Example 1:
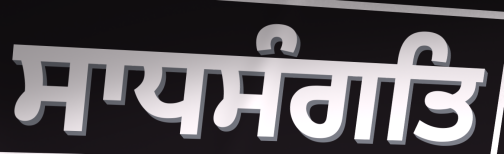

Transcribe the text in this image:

ਸਾਧਸੰਗਤਿ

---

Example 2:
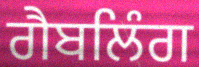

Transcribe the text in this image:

ਗੈਬਲਿੰਗ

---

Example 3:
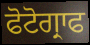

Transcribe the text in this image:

ਫੋਟੋਗ੍ਰਾਫ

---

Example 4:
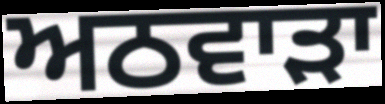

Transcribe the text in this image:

ਅਠਵਾੜਾ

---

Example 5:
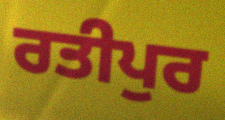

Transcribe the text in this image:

ਰਤੀਪੁਰ